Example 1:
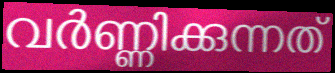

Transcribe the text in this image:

വർണ്ണിക്കുന്നത്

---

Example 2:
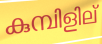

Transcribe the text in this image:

കുമ്പിളില്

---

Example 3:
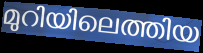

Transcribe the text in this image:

മുറിയിലെത്തിയ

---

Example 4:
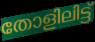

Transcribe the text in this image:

തോളിലിട്ട്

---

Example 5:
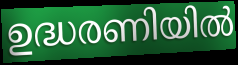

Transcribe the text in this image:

ഉദ്ധരണിയിൽ